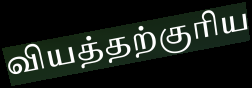
வியத்தற்குரிய